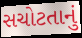
સચોટતાનું